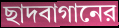
ছাদবাগানের